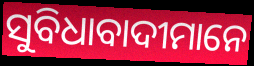
ସୁବିଧାବାଦୀମାନେ